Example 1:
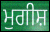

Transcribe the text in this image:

ਮੁਗੀਸ਼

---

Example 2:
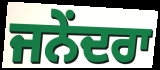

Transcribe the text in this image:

ਜਨੇਂਦਰਾ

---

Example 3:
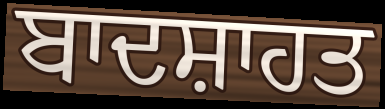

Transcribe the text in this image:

ਬਾਦਸ਼ਾਹਤ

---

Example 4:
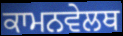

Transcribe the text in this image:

ਕਾਮਨਵੇਲਥ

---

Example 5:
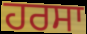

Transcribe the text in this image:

ਹਰਸਾ